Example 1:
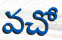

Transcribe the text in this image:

వచో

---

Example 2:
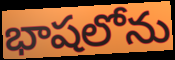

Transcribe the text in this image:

భాషలోను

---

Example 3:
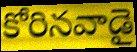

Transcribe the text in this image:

కోరినవాడై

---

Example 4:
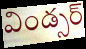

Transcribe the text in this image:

విండ్సర్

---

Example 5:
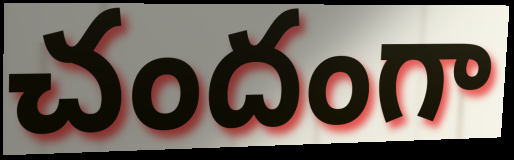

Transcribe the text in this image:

చందంగా